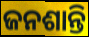
ଜନଶାନ୍ତି